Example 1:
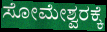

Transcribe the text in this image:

ಸೋಮೇಶ್ವರಕ್ಕೆ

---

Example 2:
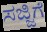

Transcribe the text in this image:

ಸಜ್ಜಿಗೆ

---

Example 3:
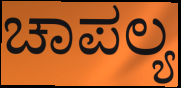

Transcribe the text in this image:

ಚಾಪಲ್ಯ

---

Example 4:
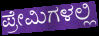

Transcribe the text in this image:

ಪ್ರೇಮಿಗಳಲ್ಲಿ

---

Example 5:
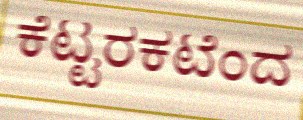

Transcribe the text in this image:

ಕೆಟ್ಟರಕಟೆಂದ